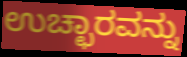
ಉಚ್ಛಾರವನ್ನು